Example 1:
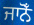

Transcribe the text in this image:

ਜਾਨੋਁ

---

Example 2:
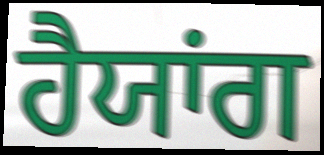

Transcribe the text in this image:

ਹੈਯਾਂਗ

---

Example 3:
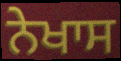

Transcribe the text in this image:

ਨੇਖਾਸ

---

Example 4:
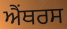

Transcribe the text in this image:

ਐਂਥਰਸ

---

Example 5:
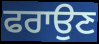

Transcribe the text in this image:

ਫਰਾਉਣ